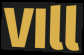
VIll